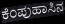
ಕೆಂಪುಹಾಸಿನ